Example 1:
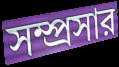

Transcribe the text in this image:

সম্প্রসার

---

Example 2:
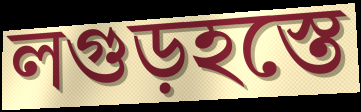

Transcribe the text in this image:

লগুড়হস্তে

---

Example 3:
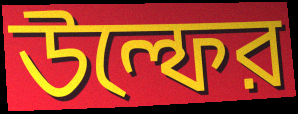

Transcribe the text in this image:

উল্ফের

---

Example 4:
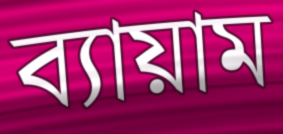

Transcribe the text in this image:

ব্যায়াম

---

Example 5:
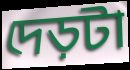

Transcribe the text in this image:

দেড়টা